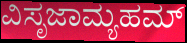
ವಿಸೃಜಾಮ್ಯಹಮ್